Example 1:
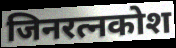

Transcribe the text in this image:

जिनरत्नकोश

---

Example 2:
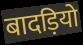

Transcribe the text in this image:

बादड़ियो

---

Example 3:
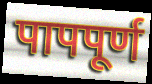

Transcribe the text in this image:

पापपूर्ण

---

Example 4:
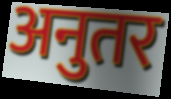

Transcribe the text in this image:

अनुतर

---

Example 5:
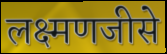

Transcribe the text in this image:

लक्ष्मणजीसे